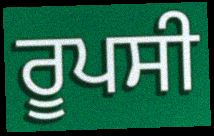
ਰੂਪਸੀ